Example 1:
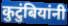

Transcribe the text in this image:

कुटुंबियांनी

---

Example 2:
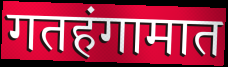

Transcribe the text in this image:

गतहंगामात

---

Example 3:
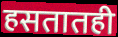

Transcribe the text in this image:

हसतातही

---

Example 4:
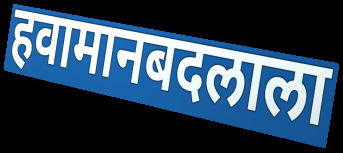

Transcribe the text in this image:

हवामानबदलाला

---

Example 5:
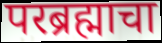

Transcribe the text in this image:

परब्रह्माचा